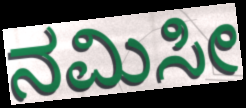
ನಮಿಸೀ